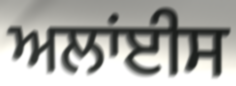
ਅਲਾਂਈਸ